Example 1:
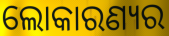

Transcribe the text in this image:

ଲୋକାରଣ୍ୟର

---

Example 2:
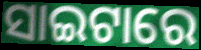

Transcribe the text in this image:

ସାଇଟାରେ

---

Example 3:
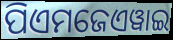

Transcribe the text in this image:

ପିଏମଜେଏୱାଇ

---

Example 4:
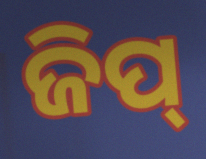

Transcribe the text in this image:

ଜିପ୍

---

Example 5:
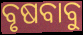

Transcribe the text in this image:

ବୃଷବାବୁ